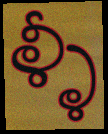
ళ్ళీ